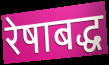
रेषाबद्ध